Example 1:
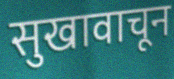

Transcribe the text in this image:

सुखावाचून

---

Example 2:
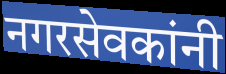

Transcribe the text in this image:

नगरसेवकांनी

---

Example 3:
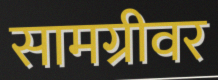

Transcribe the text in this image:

सामग्रीवर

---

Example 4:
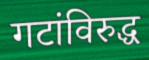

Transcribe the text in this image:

गटांविरुद्ध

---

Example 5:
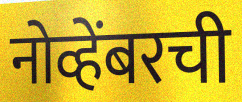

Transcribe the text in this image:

नोव्हेंबरची